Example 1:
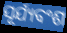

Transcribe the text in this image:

ସୂର୍ଯ୍ୟବଂଶ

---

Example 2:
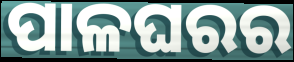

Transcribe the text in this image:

ପାଳଘରର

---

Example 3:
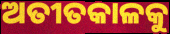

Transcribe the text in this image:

ଅତୀତକାଳକୁ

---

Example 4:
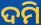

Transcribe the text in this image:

ଦମି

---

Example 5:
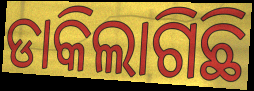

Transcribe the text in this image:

ଡାକିଲାଗିଛି